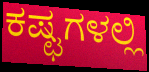
ಕಷ್ಟಗಳಲ್ಲಿ